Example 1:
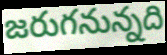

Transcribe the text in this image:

జరుగనున్నది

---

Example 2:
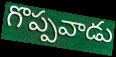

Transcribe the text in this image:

గొప్పవాడు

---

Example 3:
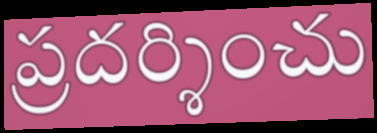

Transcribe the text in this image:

ప్రదర్శించు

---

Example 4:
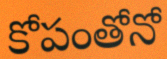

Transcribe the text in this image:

కోపంతోనో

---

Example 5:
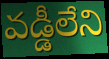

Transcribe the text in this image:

వడ్డీలేని